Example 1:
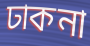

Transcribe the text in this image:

ঢাকনা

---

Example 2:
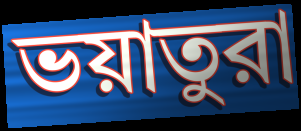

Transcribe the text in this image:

ভয়াতুরা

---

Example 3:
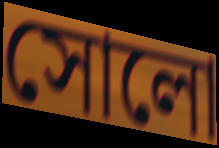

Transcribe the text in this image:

সোলো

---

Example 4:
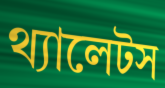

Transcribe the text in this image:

থ্যালেটস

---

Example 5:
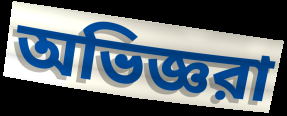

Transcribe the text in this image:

অভিজ্ঞরা